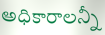
అధికారాలన్నీ